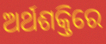
ଅର୍ଥଶକ୍ତିରେ